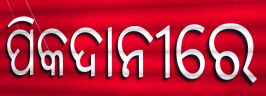
ପିକଦାନୀରେ